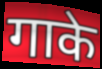
गाके